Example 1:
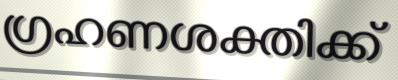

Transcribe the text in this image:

ഗ്രഹണശക്തിക്ക്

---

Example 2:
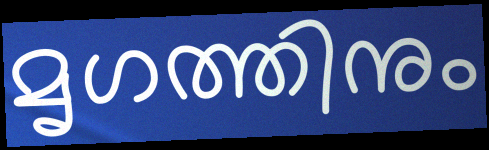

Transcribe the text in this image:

മൃഗത്തിനും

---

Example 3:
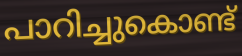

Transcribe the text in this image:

പാറിച്ചുകൊണ്ട്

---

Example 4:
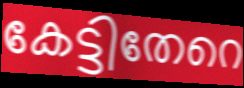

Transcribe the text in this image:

കേട്ടിതേറെ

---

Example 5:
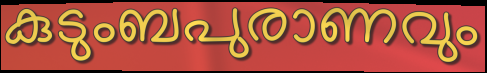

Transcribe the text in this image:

കുടുംബപുരാണവും